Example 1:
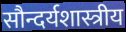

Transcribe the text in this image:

सौन्दर्यशास्त्रीय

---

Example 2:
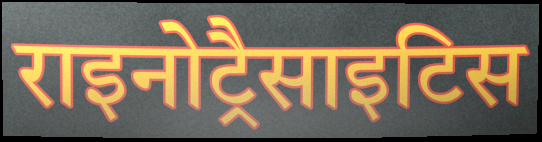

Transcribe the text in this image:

राइनोट्रैसाइटिस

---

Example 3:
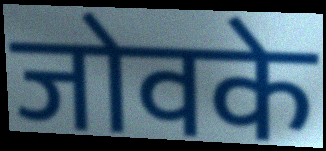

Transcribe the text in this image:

जोवके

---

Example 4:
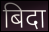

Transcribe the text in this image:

बिदा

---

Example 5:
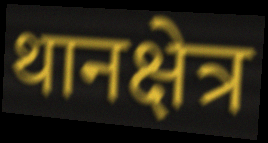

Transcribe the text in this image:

थानक्षेत्र